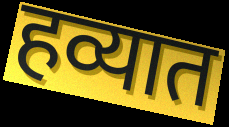
हव्‍यात